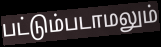
பட்டும்படாமலும்